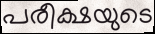
പരീക്ഷയുടെ